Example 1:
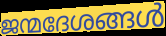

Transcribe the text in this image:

ജന്മദേശങ്ങൾ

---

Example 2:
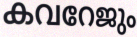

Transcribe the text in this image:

കവറേജും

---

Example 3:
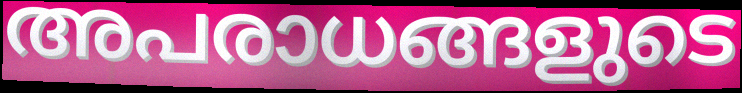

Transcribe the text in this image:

അപരാധങ്ങളുടെ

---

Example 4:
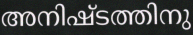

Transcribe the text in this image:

അനിഷ്ടത്തിനു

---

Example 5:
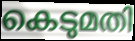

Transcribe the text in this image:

കെടുമതി